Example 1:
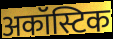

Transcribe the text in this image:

अकॉस्टिक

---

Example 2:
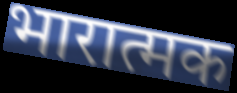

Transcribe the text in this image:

भारात्मक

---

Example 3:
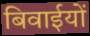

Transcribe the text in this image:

बिवाईयों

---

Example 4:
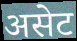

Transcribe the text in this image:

असेट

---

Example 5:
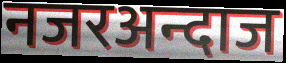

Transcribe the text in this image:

नजरअन्दाज